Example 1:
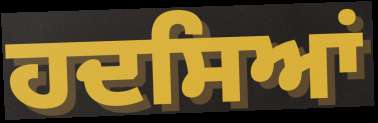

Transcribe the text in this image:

ਹਦਸਿਆਂ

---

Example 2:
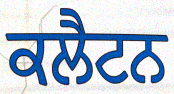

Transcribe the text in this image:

ਕਲੈਟਨ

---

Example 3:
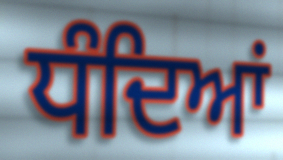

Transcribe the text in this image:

ਧੰਦਿਆਂ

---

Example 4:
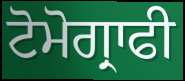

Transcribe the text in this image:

ਟੋਮੋਗ੍ਰਾਫੀ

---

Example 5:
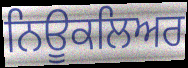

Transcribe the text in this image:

ਨਿਊਕਲਿਅਰ